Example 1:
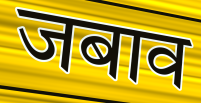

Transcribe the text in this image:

जबाव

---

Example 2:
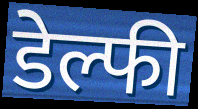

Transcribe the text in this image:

डेल्फी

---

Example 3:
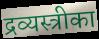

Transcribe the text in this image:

द्रव्यस्त्रीका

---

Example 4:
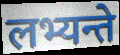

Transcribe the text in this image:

लभ्यन्ते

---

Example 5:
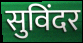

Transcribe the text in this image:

सुविंदर